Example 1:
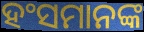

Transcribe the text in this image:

ହଂସମାନଙ୍କ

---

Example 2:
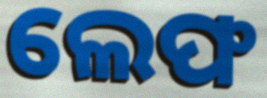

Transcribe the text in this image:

ଲେଫ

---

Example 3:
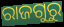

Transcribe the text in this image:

ରାଜଗୁରୁ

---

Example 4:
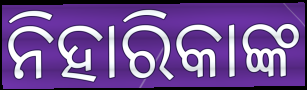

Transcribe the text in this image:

ନିହାରିକାଙ୍କ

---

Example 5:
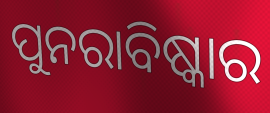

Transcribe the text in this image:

ପୁନରାବିଷ୍କାର